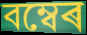
বম্বেৰ